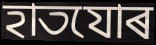
হাতযোৰ